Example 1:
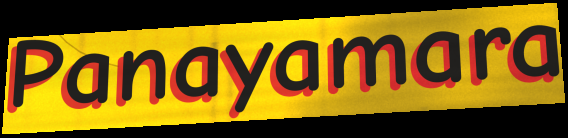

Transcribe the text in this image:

Panayamara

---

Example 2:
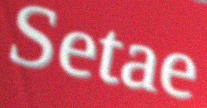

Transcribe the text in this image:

Setae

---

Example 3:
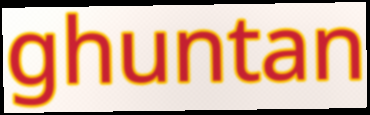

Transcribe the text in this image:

ghuntan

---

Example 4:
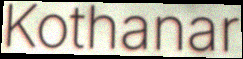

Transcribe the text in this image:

Kothanar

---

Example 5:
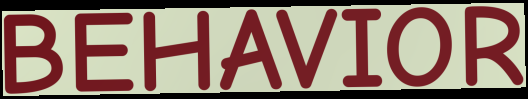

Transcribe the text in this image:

BEHAVIOR